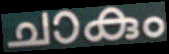
ചാകും